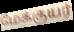
மேக்குயர்